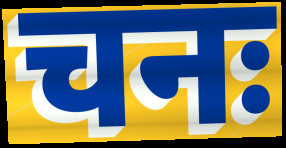
चनः